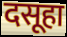
दसूहा